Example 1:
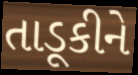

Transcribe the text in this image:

તાડૂકીને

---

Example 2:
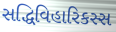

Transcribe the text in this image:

સદ્ધિવિહારિકસ્સ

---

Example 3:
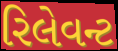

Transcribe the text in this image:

રિલેવન્ટ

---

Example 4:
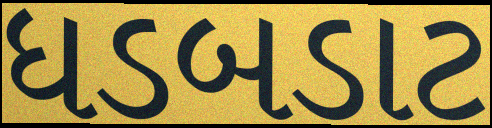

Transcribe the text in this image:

ધડબડાટ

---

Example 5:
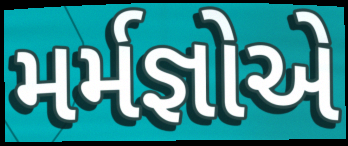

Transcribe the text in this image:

મર્મજ્ઞોએ